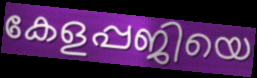
കേളപ്പജിയെ